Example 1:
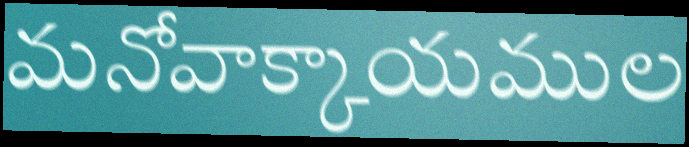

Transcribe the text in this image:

మనోవాక్కాయముల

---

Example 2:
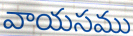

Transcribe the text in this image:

వాయసము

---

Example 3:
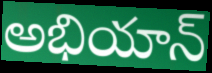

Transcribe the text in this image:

అభియాన్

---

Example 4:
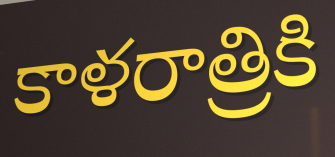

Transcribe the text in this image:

కాళరాత్రికి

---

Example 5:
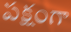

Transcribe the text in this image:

పక్షంగా